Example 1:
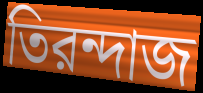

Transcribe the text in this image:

তিরন্দাজ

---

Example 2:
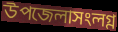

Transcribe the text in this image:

উপজেলাসংলগ্ন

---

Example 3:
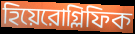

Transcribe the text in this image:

হিয়েরোগ্লিফিক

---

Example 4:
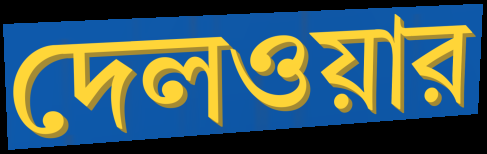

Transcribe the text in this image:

দেলওয়ার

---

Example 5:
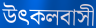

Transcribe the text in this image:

উৎকলবাসী